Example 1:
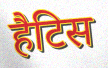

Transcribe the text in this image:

हैटिस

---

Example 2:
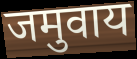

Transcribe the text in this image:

जमुवाय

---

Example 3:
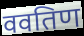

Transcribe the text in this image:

ववतिण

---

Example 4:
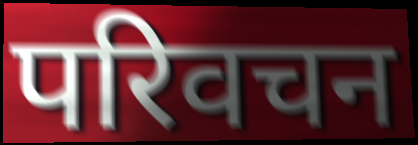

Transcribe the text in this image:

परिवचन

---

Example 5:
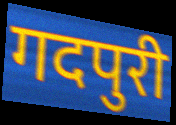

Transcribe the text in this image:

गदपुरी